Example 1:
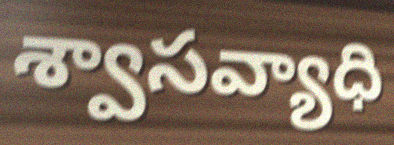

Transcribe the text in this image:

శ్వాసవ్యాధి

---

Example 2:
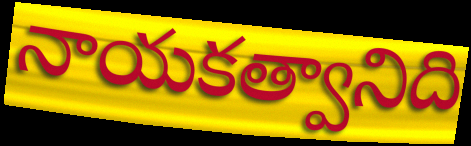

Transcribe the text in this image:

నాయకత్వానిది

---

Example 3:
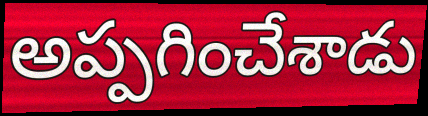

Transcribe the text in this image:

అప్పగించేశాడు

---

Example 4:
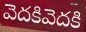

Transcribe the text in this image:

వెదకివెదకి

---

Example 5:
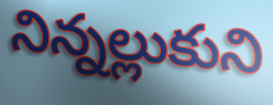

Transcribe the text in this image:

నిన్నల్లుకుని